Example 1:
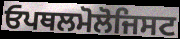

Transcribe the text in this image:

ਓਪਥਲਮੋਲੋਜਿਸਟ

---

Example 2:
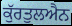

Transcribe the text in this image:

ਕੁੱਰਤੁਲਐਨ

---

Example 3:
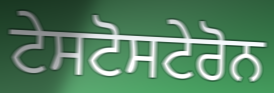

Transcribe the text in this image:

ਟੇਸਟੋਸਟੇਰੋਨ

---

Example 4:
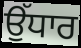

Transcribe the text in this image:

ਉੱਧਾਰ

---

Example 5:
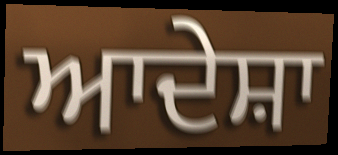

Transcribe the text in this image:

ਆਦੇਸ਼ਾ